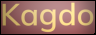
Kagdo